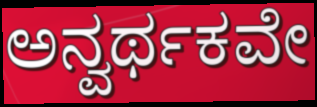
ಅನ್ವರ್ಥಕವೇ